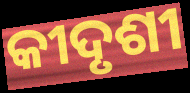
କୀଦୃଶୀ